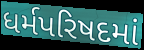
ધર્મપરિષદમાં